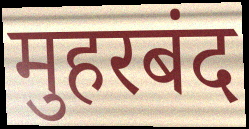
मुहरबंद